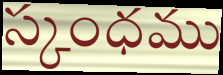
స్కంధము